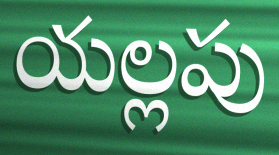
యల్లపు